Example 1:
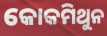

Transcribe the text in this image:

କୋକମିଥୁନ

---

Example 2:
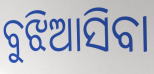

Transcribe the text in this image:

ବୁଝିଆସିବା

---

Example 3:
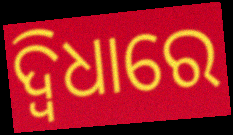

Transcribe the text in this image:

ଦ୍ୱିଧାରେ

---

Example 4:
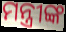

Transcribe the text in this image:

ମନ୍ତ୍ରୀଙ୍କ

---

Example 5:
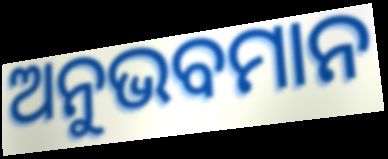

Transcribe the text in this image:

ଅନୁଭବମାନ